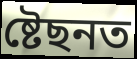
ষ্টেছনত